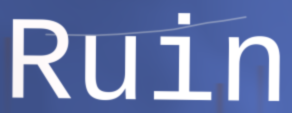
Ruin